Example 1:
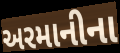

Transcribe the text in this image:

અરમાનીના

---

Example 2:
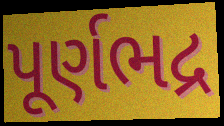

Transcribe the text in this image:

પૂર્ણભદ્ર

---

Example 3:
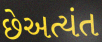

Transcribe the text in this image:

છેઅત્યંત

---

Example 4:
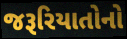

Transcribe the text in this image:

જરૂરિયાતોનો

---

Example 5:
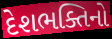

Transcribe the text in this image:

દેશભક્તિનો